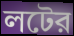
লটের